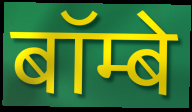
बॉम्‍बे